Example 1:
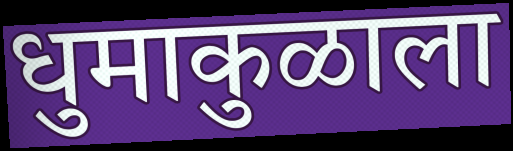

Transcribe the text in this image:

धुमाकुळाला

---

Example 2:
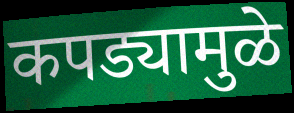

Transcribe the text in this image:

कपड्यामुळे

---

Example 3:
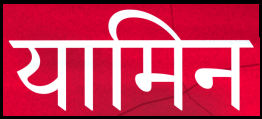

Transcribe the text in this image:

यामिन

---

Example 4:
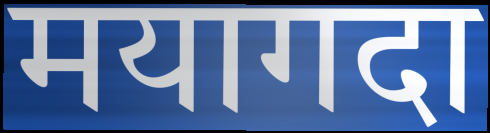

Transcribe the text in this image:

मयागदा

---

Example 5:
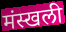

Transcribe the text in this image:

मंस्खली